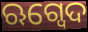
ଋଗ୍ବେଦ